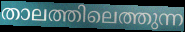
താലത്തിലെത്തുന്ന